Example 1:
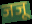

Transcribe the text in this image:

जजू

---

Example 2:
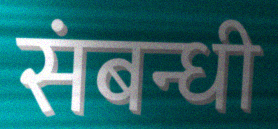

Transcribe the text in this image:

संबन्धी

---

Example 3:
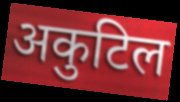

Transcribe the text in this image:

अकुटिल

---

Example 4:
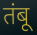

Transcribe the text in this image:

तंबू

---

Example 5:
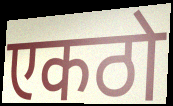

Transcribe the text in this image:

एकठो